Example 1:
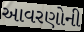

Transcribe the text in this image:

આવરણોની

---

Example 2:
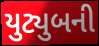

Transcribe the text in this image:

યુટ્યુબની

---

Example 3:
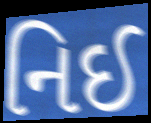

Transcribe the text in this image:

નિઈ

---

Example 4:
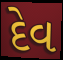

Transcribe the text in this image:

દેવ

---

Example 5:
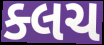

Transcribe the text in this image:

ક્લચ